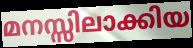
മനസ്സിലാക്കിയ